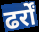
ढर्रों